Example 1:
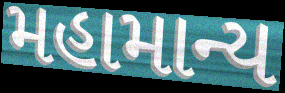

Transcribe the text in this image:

મહામાન્ય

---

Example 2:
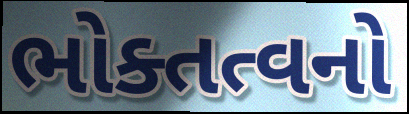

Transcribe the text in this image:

ભોક્તત્વનો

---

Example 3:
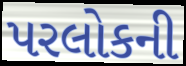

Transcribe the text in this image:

પરલોકની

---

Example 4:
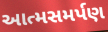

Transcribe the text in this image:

આત્મસમર્પણ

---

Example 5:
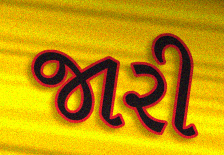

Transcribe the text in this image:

જારી